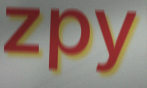
zpy